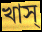
খাস্